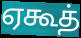
ஏகூத்